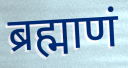
ब्रह्माणं